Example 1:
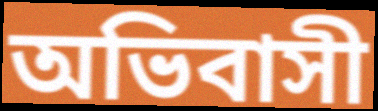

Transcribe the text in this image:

অভিবাসী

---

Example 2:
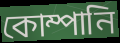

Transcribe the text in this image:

কোম্পানি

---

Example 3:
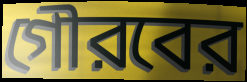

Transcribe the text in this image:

গৌরবের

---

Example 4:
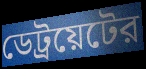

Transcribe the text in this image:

ডেট্রয়েটের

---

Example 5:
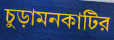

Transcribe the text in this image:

চুড়ামনকাটির